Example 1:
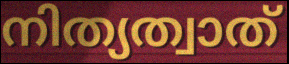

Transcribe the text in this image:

നിത്യത്വാത്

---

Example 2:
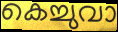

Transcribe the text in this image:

കെച്ചുവാ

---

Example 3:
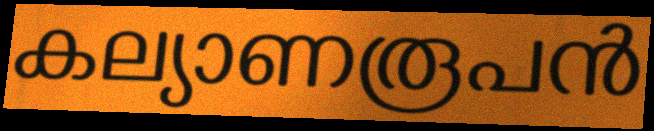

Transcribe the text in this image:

കല്യാണരൂപൻ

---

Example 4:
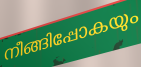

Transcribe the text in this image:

നീങ്ങിപ്പോകയും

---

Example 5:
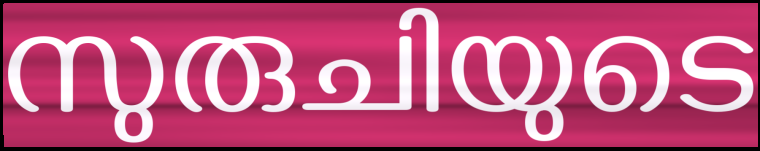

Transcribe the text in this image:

സുരുചിയുടെ